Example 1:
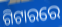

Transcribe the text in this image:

ଗିଟାରରେ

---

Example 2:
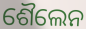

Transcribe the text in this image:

ଶୈଲେନ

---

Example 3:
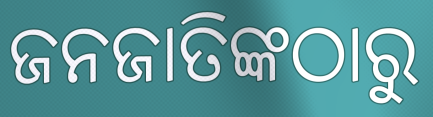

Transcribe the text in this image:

ଜନଜାତିଙ୍କଠାରୁ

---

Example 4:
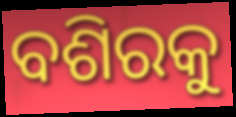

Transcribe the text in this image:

ବଶିରକୁ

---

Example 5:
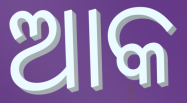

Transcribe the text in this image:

ଆକ